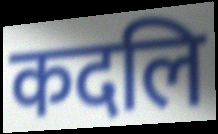
कदलि